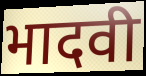
भादवी